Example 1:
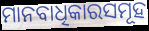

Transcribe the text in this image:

ମାନବାଧିକାରସମୂହ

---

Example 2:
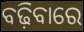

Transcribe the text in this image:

ବଢ଼ିବାରେ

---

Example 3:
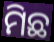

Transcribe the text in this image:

ମିଛ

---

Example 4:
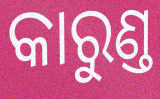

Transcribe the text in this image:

କାରୁଣ୍ଡ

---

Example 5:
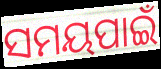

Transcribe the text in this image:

ସମୟପାଇଁ